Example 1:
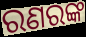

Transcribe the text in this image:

ରଣରଙ୍କ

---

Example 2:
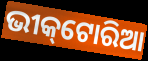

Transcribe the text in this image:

ଭୀକ୍‌ଟୋରିଆ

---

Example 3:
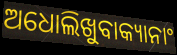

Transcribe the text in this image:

ଅଧୋଲିଖୁବାକ୍ୟାନାଂ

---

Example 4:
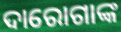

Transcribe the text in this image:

ଦାରୋଗାଙ୍କ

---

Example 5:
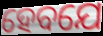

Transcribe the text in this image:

ହେବଯେ